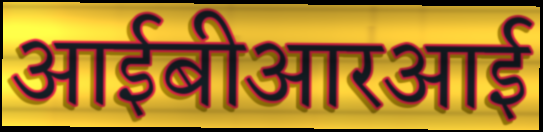
आईबीआरआई